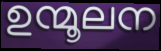
ഉന്മൂലന